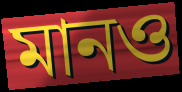
মানও